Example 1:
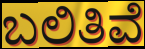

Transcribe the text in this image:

ಬಲಿತಿವೆ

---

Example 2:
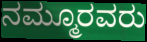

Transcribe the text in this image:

ನಮ್ಮೂರವರು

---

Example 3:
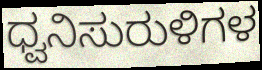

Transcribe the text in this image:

ಧ್ವನಿಸುರುಳಿಗಳ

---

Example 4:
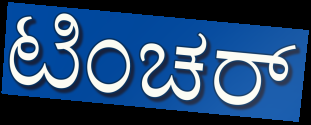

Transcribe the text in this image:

ಟಿಂಚರ್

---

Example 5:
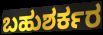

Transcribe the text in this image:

ಬಹುಶರ್ಕರ